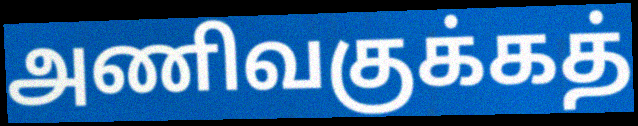
அணிவகுக்கத்